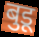
बुडू